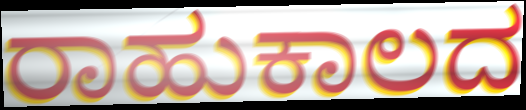
ರಾಹುಕಾಲದ